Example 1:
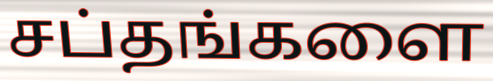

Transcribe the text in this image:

சப்தங்களை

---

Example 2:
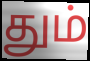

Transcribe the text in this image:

தும்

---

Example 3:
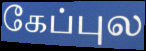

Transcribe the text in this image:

கேப்புல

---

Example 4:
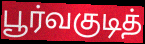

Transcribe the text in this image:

பூர்வகுடித்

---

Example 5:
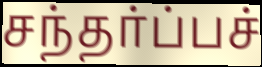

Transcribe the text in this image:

சந்தர்ப்பச்